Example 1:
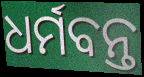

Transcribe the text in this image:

ଧର୍ମବନ୍ତ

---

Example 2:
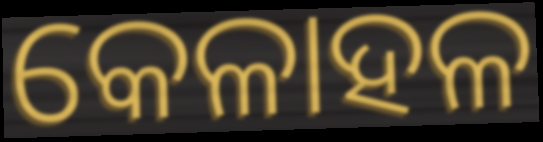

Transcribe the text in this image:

କେଳାହଳ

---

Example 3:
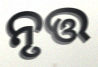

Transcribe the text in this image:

ନୃତ୍ତ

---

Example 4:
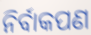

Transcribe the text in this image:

ନିର୍ବାକପଣ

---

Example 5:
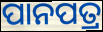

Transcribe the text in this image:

ପାନପତ୍ର